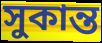
সুকান্ত